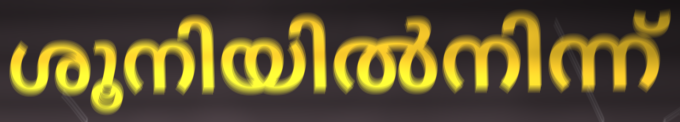
ശൂനിയിൽനിന്ന്